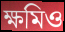
ক্ষমিও